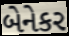
બેનેકર